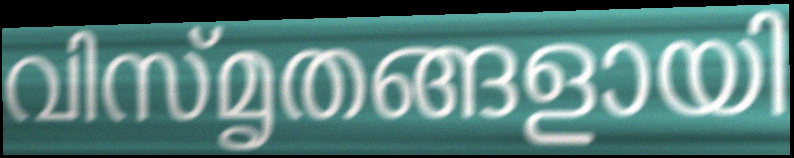
വിസ്മൃതങ്ങളായി